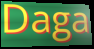
Daga